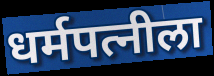
धर्मपत्नीला